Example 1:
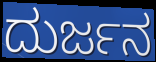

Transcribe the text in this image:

ದುರ್ಜನ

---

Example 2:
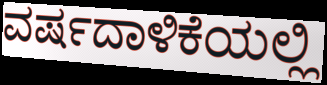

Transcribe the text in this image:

ವರ್ಷದಾಳಿಕೆಯಲ್ಲಿ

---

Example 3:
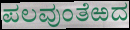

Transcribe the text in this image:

ಪಲವುಂತೆಱದ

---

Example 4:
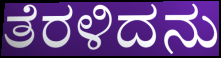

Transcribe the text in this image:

ತೆರಳಿದನು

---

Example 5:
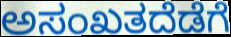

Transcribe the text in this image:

ಅಸಂಖತದೆಡೆಗೆ